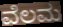
ವೆಲಮ